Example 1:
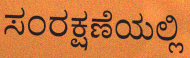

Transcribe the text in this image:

ಸಂರಕ್ಷಣೆಯಲ್ಲಿ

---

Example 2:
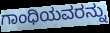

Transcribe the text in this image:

ಗಾಂಧಿಯವರನ್ನು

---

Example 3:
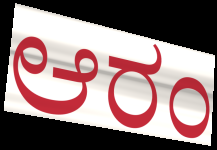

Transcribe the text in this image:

ಆರಂ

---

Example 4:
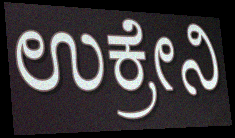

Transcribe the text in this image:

ಉಕ್ರೇನಿ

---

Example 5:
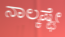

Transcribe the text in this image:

ನಾಲ್ಕಷ್ಟೇ